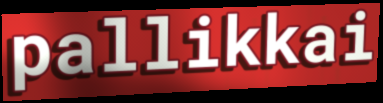
pallikkai